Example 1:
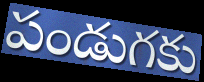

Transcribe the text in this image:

పండుగకు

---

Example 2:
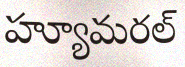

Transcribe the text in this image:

హ్యూమరల్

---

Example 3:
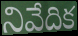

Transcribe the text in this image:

నివేదిక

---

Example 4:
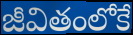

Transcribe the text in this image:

జీవితంలోకే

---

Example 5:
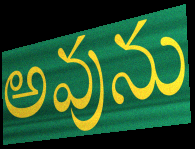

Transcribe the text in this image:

అవును